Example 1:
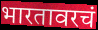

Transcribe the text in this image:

भारतावरचं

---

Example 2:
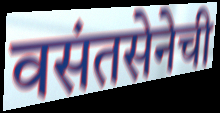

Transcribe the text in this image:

वसंतसेनेची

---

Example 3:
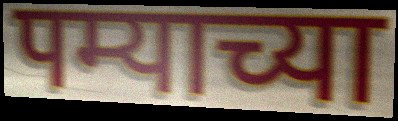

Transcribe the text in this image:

पम्याच्या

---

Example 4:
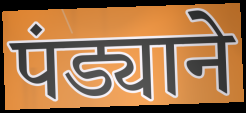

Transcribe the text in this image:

पंड्याने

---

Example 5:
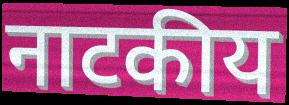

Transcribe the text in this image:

नाटकीय